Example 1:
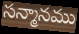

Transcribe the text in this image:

సన్మానము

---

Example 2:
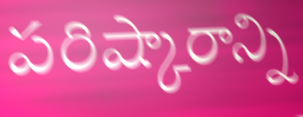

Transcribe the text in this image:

పరిష్కారాన్ని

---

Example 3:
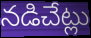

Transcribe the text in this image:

నడిచేట్లు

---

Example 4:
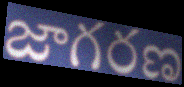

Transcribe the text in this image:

జాగరణ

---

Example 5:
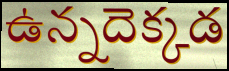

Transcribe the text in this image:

ఉన్నదెక్కడ